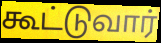
கூட்டுவார்